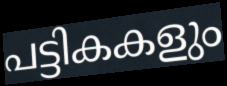
പട്ടികകളും